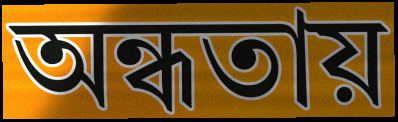
অন্ধতায়